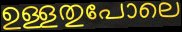
ഉള്ളതുപോലെ